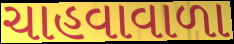
ચાહવાવાળા